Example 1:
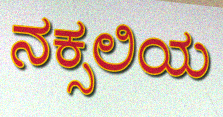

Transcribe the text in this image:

ನಕ್ಸಲಿಯ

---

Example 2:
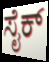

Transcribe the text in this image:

ಸೈಕ್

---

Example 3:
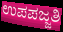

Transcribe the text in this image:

ಉಪಪಜ್ಜತಿ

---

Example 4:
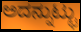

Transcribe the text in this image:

ಅದನ್ನುಟ್ಟು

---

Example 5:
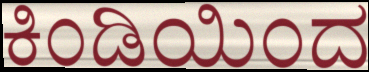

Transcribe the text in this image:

ಕಿಂಡಿಯಿಂದ